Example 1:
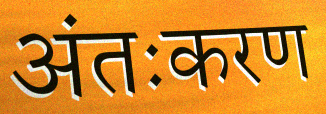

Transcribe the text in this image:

अंतःकरण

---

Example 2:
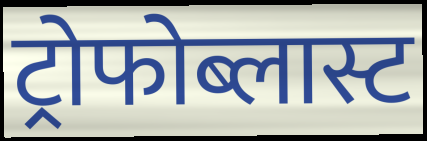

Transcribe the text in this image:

ट्रोफोब्लास्ट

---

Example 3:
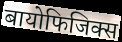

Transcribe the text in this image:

बायोफिजिक्स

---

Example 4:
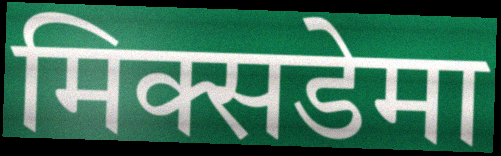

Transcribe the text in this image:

मिक्सडेमा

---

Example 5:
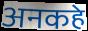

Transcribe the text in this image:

अनकहे